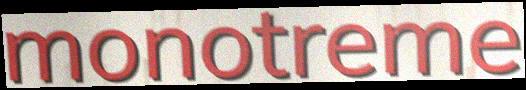
monotreme